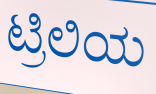
ಟ್ರಿಲಿಯ